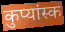
कुप्यांस्क